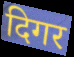
दिगर